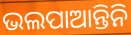
ଭଲପାଆନ୍ତିନି